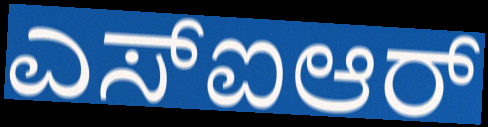
ಎಸ್ಐಆರ್